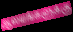
ஆலயங்களுக்கு